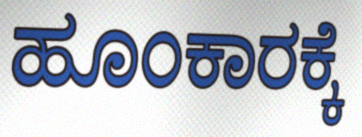
ಹೂಂಕಾರಕ್ಕೆ